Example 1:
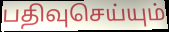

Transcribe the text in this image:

பதிவுசெய்யும்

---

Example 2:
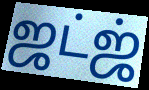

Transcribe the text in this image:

ஜட்ஜ்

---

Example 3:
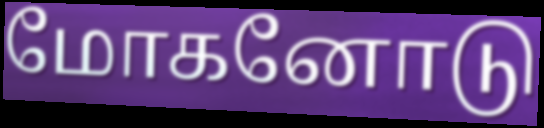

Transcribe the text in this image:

மோகனோடு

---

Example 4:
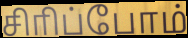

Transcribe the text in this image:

சிரிப்போம்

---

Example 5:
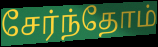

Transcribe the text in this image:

சேர்ந்தோம்